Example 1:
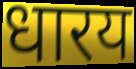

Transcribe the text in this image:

धारय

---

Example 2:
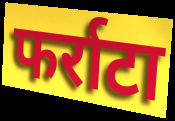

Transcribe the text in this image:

फर्राटा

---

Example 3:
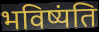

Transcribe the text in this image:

भविष्यंति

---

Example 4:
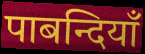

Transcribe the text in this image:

पाबन्दियाँ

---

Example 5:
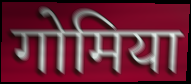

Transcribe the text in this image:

गोमिया